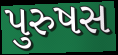
પુરુષસ